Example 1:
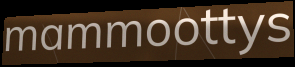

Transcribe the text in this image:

mammoottys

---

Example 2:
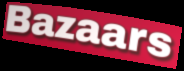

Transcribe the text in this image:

Bazaars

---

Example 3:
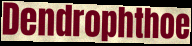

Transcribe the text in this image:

Dendrophthoe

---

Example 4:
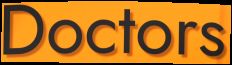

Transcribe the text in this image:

Doctors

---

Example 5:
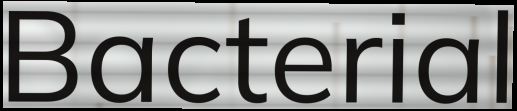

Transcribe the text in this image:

Bacterial